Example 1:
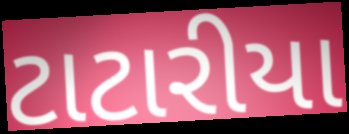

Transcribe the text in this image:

ટાટારીયા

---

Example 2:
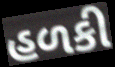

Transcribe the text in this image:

હળકી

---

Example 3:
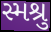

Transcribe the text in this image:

સ્મશ્રુ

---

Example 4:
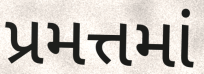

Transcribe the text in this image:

પ્રમત્તમાં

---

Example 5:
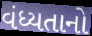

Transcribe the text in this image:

વંધ્યતાનો